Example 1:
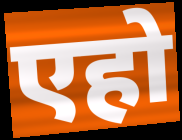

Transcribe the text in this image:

एहो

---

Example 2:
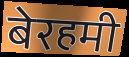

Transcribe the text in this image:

बेरहमी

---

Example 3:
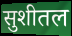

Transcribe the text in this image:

सुशीतल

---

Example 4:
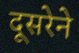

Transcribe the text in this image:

दूसरेने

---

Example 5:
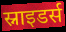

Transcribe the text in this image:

स्नाइडर्स